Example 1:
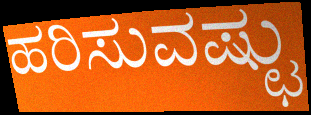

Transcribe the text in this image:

ಹರಿಸುವಷ್ಟು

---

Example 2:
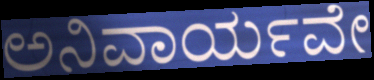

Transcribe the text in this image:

ಅನಿವಾರ್ಯವೇ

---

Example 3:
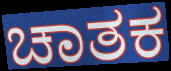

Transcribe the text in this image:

ಚಾತಕ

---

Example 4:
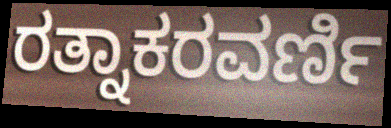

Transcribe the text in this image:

ರತ್ನಾಕರವರ್ಣಿ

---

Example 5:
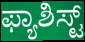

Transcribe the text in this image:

ಫ್ಯಾಶಿಸ್ಟ್